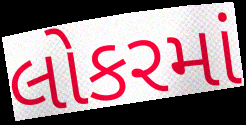
લોકરમાં